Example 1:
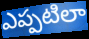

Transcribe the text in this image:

ఎప్పటిలా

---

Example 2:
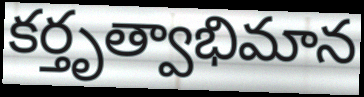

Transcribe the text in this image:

కర్తృత్వాభిమాన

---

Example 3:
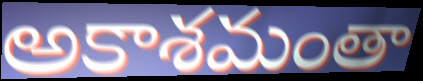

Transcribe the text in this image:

అకాశమంతా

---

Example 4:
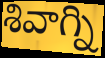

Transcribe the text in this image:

శివాగ్ని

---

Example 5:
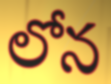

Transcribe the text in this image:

లోన